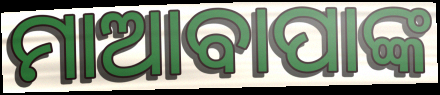
ମାଆବାପାଙ୍କ